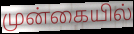
முன்கையில்